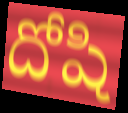
దోషి